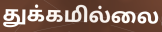
துக்கமில்லை